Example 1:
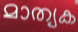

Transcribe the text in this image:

മാത്യക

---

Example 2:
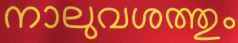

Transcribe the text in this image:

നാലുവശത്തും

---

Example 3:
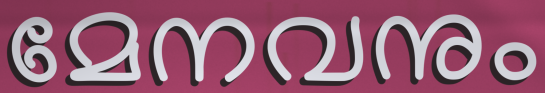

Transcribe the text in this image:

മേനവനും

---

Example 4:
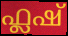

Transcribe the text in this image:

ഫ്ലഷ്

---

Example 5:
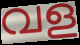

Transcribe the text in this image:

വള